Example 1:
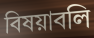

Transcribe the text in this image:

বিষয়াবলি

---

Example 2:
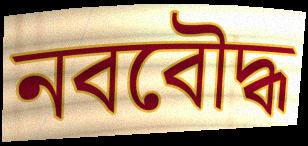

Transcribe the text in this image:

নববৌদ্ধ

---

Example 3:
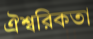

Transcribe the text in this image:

ঐশ্বরিকতা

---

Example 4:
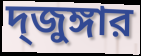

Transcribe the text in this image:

দ্জুঙ্গার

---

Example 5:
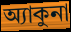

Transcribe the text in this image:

অ্যাকুনা